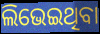
ଲିଭେଇଥିବା